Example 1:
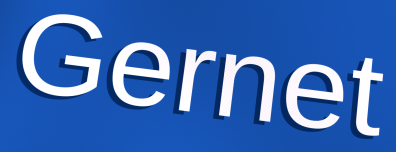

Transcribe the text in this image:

Gernet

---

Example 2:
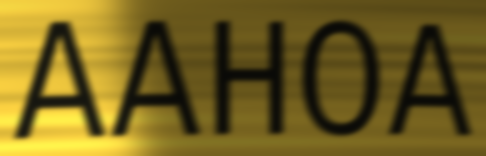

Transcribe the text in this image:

AAHOA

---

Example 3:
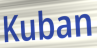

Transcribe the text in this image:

Kuban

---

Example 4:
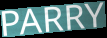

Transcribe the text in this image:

PARRY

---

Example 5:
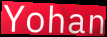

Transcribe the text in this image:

Yohan